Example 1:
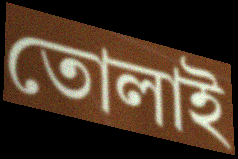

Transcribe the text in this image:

তোলাই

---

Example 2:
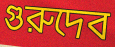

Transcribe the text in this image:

গুরুদেব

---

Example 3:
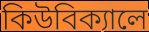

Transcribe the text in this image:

কিউবিক্যালে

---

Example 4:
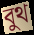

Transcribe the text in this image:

বুথ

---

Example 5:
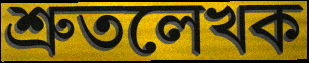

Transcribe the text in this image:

শ্রুতলেখক